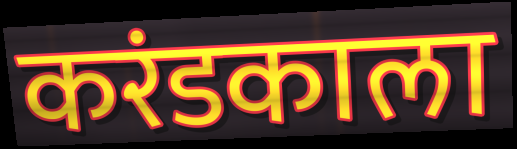
करंडकाला